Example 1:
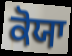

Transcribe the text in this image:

ਕੋਯਾ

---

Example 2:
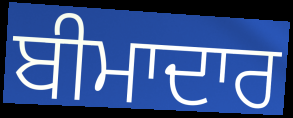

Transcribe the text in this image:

ਬੀਮਾਦਾਰ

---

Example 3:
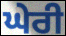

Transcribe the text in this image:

ਘੇਰੀ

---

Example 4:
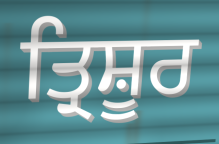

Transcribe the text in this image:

ਤ੍ਰਿਸ਼ੂਰ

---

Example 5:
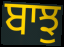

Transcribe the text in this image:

ਬਾਝੁ